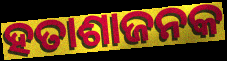
ହତାଶାଜନକ